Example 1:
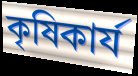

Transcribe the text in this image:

কৃষিকাৰ্য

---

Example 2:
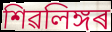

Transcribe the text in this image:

শিৱলিঙ্গৰ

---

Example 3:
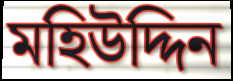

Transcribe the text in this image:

মহিউদ্দিন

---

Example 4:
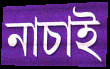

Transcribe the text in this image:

নাচাই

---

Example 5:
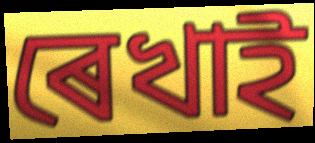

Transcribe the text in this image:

ৰেখাই